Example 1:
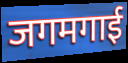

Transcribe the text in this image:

जगमगाई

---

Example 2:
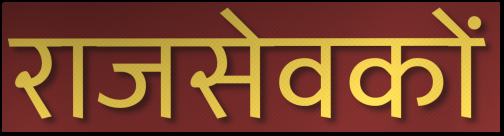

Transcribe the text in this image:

राजसेवकों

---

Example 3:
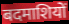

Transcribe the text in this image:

बदमाशियों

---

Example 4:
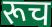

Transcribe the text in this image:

रूच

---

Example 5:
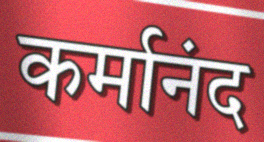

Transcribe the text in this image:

कर्मानंद